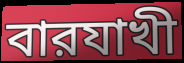
বারযাখী